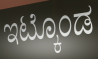
ಇಟ್ಕೊಂಡ